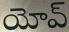
యోవ్